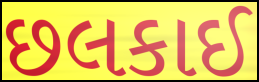
છલકાઈ